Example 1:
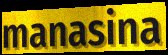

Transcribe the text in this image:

manasina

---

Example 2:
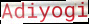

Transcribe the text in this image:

Adiyogi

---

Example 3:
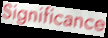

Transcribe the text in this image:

Significance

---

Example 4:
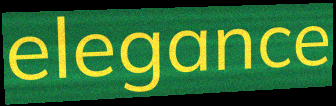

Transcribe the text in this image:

elegance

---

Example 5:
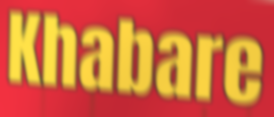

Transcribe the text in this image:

Khabare